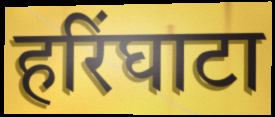
हरिंघाटा